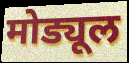
मोड्यूल